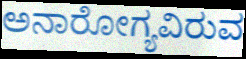
ಅನಾರೋಗ್ಯವಿರುವ